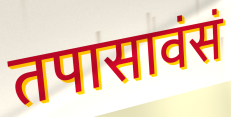
तपासावंसं